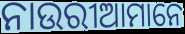
ନାଉରୀଆମାନେ